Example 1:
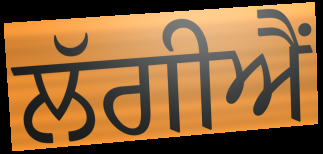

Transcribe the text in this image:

ਲੱਗੀਐਂ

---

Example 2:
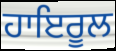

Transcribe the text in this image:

ਹਾਇਰੂਲ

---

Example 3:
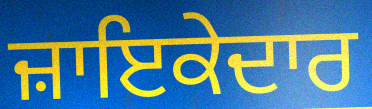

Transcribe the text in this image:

ਜ਼ਾਇਕੇਦਾਰ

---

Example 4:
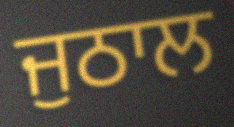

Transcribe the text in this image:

ਜੁਠਾਲ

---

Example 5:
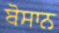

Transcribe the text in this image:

ਬੋਸਾਨ